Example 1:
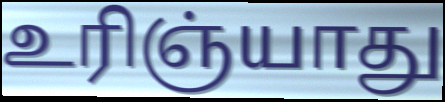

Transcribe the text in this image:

உரிஞ்யாது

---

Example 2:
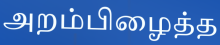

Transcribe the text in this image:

அறம்பிழைத்த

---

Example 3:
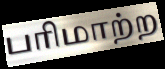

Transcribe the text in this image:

பரிமாற்ற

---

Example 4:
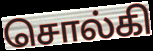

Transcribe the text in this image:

சொல்கி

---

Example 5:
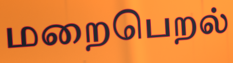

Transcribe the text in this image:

மறைபெறல்